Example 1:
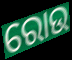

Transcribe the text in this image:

ରୋଉ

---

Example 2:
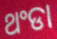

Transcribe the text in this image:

ଥଂଡା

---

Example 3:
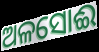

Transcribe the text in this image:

ଅଳସୋଈ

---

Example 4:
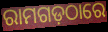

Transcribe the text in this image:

ରାମଗଡ଼ଠାରେ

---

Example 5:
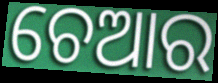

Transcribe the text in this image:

ଚେଆର